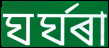
ঘৰ্ঘৰা